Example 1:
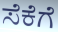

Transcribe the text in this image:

ಸೆಕೆಗೆ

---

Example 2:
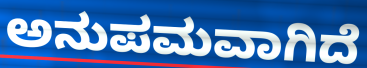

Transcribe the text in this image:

ಅನುಪಮವಾಗಿದೆ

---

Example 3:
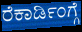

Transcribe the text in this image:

ರೆಕಾರ್ಡಿಂಗ್ಗೆ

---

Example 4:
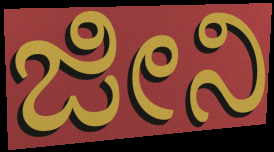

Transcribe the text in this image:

ಜೀನಿ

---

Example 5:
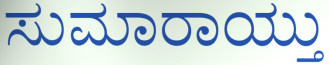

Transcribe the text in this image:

ಸುಮಾರಾಯ್ತು